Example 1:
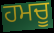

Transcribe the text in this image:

ਹਮਚੂ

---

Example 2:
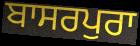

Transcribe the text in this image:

ਬਾਸਰਪੁਰਾ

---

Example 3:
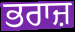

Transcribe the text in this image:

ਭਰਾਜ਼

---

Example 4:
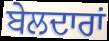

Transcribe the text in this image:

ਬੇਲਦਾਰਾਂ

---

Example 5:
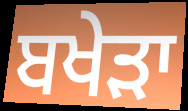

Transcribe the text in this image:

ਬਖੇੜਾ